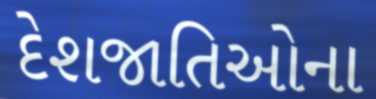
દેશજાતિઓના